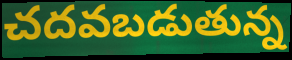
చదవబడుతున్న